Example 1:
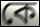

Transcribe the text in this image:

কে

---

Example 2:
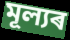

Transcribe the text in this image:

মূল্যৰ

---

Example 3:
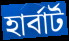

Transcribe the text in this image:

হাৰ্বাৰ্ট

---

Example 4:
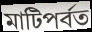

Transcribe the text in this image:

মাটিপৰ্বত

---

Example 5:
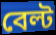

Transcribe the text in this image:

বেল্ট